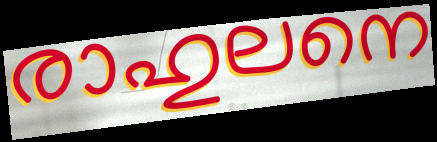
രാഹുലനെ